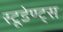
स्टूडेण्ट्स